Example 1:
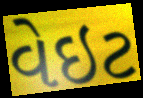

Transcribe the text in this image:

વેઇટ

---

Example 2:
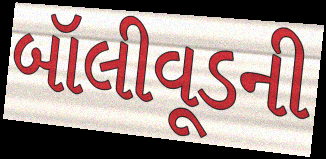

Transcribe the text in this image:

બૉલીવૂડની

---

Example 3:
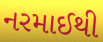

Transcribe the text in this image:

નરમાઈથી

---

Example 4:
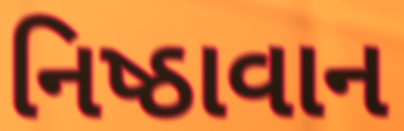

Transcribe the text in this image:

નિષ્ઠાવાન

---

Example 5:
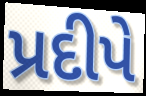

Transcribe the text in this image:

પ્રદીપે